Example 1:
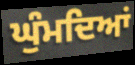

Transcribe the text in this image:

ਘੁੰਮਦਿਆਂ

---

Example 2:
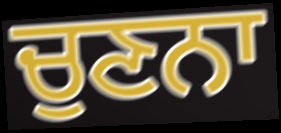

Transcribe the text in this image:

ਚੁਣਨਾ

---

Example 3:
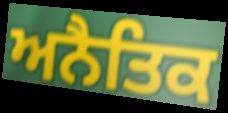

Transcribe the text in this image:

ਅਨੈਤਿਕ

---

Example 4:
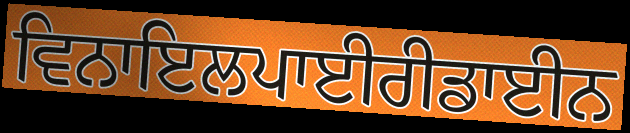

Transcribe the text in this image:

ਵਿਨਾਇਲਪਾਈਰੀਡਾਈਨ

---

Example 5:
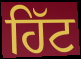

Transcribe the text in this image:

ਹਿੱਟ